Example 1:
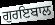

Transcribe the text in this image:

ਗੁਰਇਬਾਲ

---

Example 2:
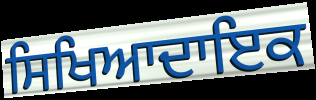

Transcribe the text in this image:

ਸਿਖਿਆਦਾਇਕ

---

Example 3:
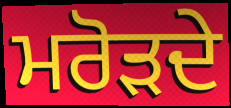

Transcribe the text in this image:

ਮਰੋੜਦੇ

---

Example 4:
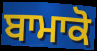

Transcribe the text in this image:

ਬਾਮਾਕੋ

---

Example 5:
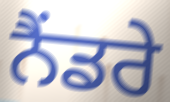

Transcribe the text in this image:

ਨੈਂਡਰੇ